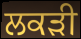
ਲਕੜੀ